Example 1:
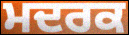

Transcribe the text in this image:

ਮਦਰਕ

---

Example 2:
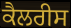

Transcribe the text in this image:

ਕੈਲਰੀਸ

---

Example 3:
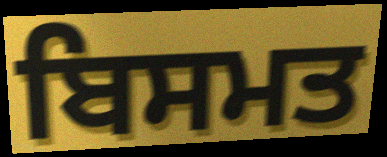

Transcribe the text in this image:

ਬਿਸਮਤ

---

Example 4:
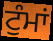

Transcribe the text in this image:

ਟੁੰਮਾਂ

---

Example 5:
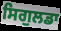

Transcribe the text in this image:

ਸਿਗੁਲਡਾ